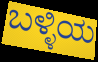
ಬಳ್ಳಿಯ